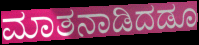
ಮಾತನಾಡಿದಡೂ